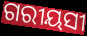
ଗରୀୟସୀ